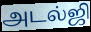
அடல்ஜி